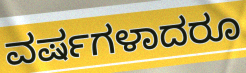
ವರ್ಷಗಳಾದರೂ